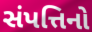
સંપત્તિનો